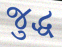
જુદ્ધ